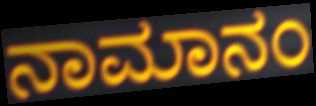
ನಾಮಾನಂ